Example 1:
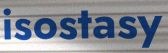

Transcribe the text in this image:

isostasy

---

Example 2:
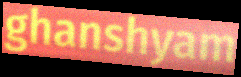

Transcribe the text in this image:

ghanshyam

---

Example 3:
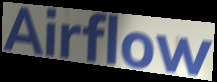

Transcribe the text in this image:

Airflow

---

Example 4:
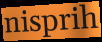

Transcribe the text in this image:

nisprih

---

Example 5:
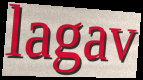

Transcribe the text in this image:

lagav